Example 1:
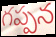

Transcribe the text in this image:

గప్పన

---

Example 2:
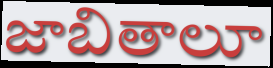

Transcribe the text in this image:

జాబితాలూ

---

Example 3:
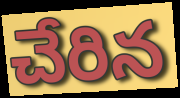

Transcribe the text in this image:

చేరిన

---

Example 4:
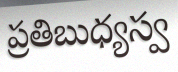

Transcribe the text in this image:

ప్రతిబుధ్యస్వ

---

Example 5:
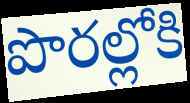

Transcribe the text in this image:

పొరల్లోకి